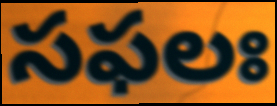
సఫలః